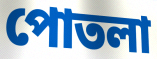
পোতলা